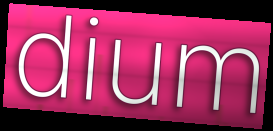
dium